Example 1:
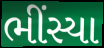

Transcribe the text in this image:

ભીંસ્યા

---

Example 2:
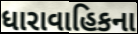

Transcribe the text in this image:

ધારાવાહિકના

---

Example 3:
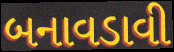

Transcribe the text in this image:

બનાવડાવી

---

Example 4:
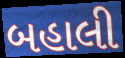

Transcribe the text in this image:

બહાલી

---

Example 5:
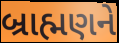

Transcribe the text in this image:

બ્રાહ્મણને